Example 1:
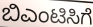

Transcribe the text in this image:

ಬಿಎಂಟಿಸಿಗೆ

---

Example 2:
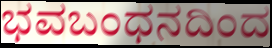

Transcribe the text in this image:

ಭವಬಂಧನದಿಂದ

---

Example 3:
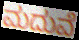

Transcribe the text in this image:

ಮದುವೆ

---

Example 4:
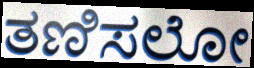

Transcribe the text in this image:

ತಣಿಸಲೋ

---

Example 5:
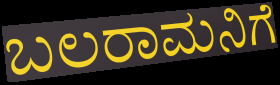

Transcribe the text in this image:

ಬಲರಾಮನಿಗೆ